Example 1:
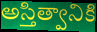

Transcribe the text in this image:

అస్తిత్వానికి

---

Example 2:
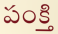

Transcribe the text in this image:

పంక్తి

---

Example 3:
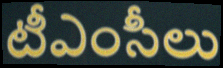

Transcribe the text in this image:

టీఎంసీలు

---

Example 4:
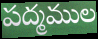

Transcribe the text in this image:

పద్మముల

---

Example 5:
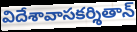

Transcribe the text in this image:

విదేశావాసకర్శితాన్